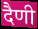
दैणी